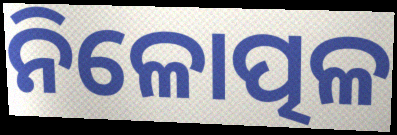
ନିଳୋତ୍ପଳ